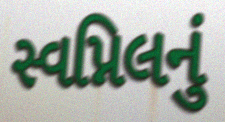
સ્વપ્નિલનું